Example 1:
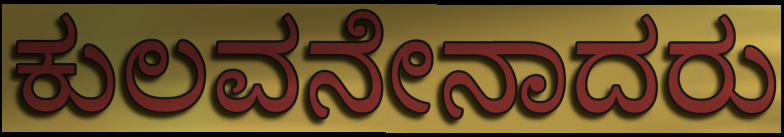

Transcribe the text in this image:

ಕುಲವನೇನಾದರು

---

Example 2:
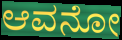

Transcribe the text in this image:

ಆವನೋ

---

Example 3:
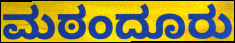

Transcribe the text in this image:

ಮಠಂದೂರು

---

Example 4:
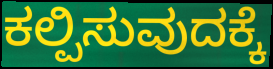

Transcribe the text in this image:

ಕಲ್ಪಿಸುವುದಕ್ಕೆ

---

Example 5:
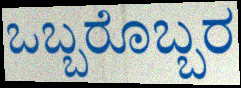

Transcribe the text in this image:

ಒಬ್ಬರೊಬ್ಬರ